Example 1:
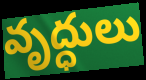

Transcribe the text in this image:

వృద్ధులు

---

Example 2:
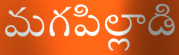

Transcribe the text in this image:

మగపిల్లాడి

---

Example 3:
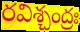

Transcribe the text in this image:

రవిశ్చంద్రః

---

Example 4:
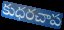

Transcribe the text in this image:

కుధరచాప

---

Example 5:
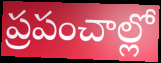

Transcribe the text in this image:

ప్రపంచాల్లో